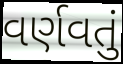
વર્ણવતું